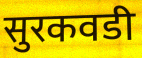
सुरकवडी